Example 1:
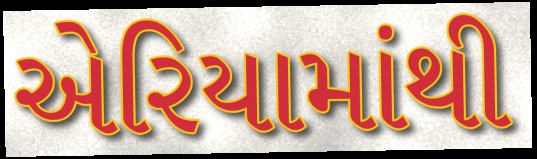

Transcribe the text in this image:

એરિયામાંથી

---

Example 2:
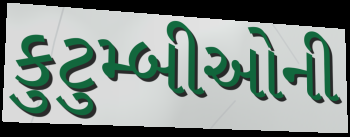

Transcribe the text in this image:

કુટુમ્બીઓની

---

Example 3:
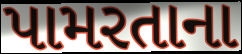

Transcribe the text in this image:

પામરતાના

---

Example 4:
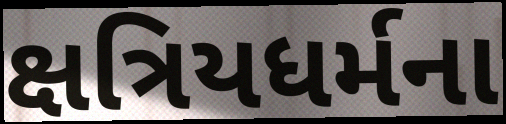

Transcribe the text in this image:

ક્ષત્રિયધર્મના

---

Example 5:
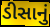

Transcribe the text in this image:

ડીસાનું